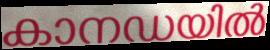
കാനഡയിൽ